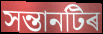
সন্তানটিৰ